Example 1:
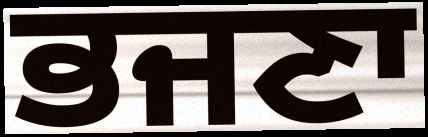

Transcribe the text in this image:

ਭਜਣਾ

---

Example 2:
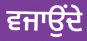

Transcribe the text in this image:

ਵਜਾਉਂਦੇ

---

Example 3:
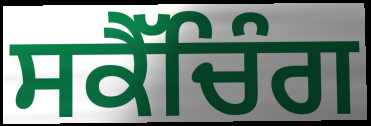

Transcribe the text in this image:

ਸਕੈੱਚਿੰਗ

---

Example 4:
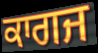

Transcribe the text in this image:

ਕਾਗਜ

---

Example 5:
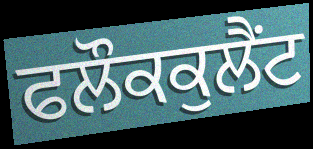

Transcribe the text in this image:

ਫਲੌਕਕੁਲੈਂਟ